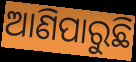
ଆଣିପାରୁଛି